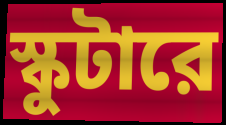
স্কুটারে